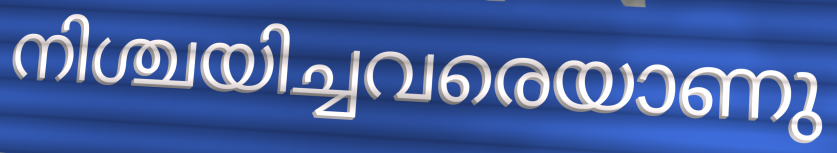
നിശ്ചയിച്ചവരെയാണു